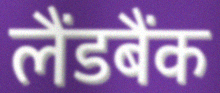
लैंडबैंक